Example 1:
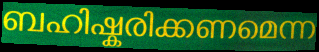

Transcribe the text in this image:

ബഹിഷ്കരിക്കണമെന്ന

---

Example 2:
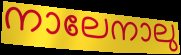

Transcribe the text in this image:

നാലേനാലു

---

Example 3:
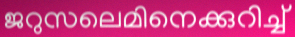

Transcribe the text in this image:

ജറുസലെമിനെക്കുറിച്ച്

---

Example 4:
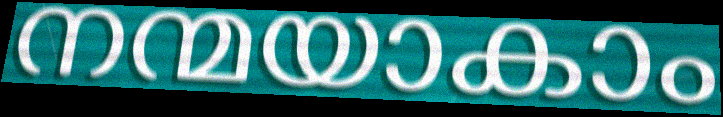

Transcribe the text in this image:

നന്മയാകാം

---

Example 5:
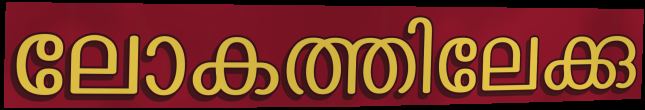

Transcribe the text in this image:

ലോകത്തിലേക്കു